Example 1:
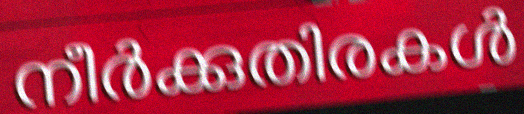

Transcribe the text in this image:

നീർക്കുതിരകൾ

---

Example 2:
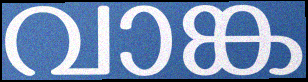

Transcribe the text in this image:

വാങ്ക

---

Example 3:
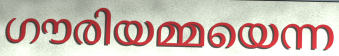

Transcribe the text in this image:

ഗൗരിയമ്മയെന്ന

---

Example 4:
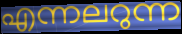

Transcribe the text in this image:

എന്നലറുന്ന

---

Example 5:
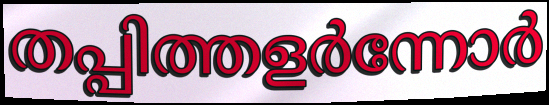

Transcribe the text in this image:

തപ്പിത്തളർന്നോർ